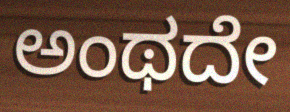
ಅಂಥದೇ